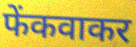
फेंकवाकर